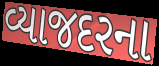
વ્યાજદરના